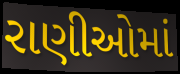
રાણીઓમાં